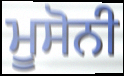
ਮੂਸੋਨੀ